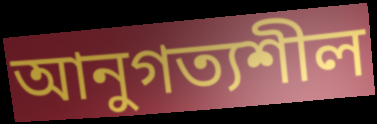
আনুগত্যশীল